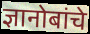
ज्ञानोबांचे